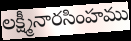
లక్ష్మీనారసింహము